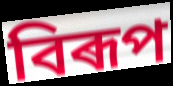
বিৰূপ